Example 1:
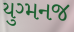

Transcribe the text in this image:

યુગ્મનજ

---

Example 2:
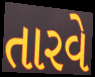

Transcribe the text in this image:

તારવે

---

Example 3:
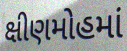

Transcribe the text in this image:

ક્ષીણમોહમાં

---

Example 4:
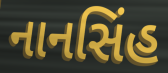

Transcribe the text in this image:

નાનસિંહ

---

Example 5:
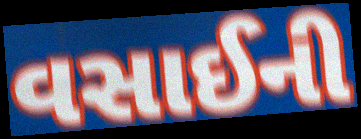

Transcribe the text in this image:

વસાઈની